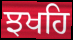
ਝਖਹਿ